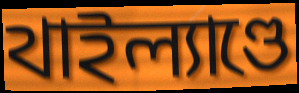
থাইল্যাণ্ডে